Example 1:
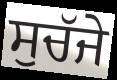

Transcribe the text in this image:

ਸੁਚੱਜੇ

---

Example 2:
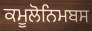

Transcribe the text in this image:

ਕਮੂਲੋਨਿਮਬਸ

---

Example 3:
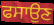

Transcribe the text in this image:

ਫਸਾਉਣ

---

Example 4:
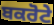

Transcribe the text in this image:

ਬਕਰੋਟੇ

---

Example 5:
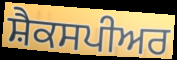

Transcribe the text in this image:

ਸ਼ੈਕਸਪੀਅਰ